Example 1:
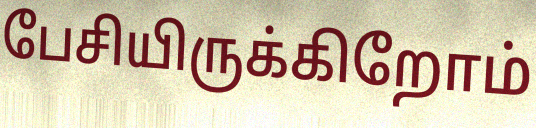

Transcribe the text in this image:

பேசியிருக்கிறோம்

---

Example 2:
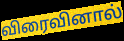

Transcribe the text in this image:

விரைவினால்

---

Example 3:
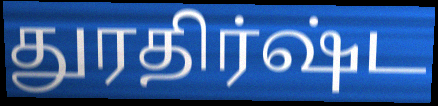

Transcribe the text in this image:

துரதிர்ஷ்ட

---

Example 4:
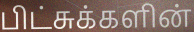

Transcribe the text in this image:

பிட்சுக்களின்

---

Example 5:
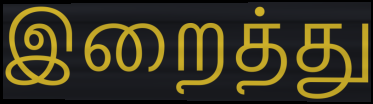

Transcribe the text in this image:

இறைத்து